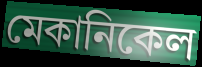
মেকানিকেল